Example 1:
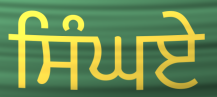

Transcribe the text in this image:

ਸਿੰਘਏ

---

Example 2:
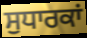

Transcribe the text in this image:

ਸੁਧਾਰਕਾਂ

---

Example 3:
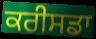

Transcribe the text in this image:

ਕਰੀਸਡਾ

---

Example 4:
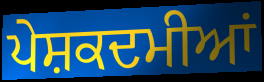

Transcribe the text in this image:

ਪੇਸ਼ਕਦਮੀਆਂ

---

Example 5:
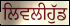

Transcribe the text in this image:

ਲਿਵਲੀਹੁੱਡ